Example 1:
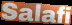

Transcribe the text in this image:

Salafi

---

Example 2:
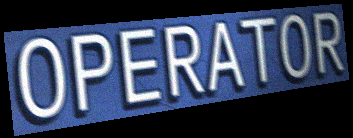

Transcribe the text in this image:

OPERATOR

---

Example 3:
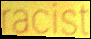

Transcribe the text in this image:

racist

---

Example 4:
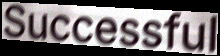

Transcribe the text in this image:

Successful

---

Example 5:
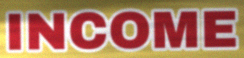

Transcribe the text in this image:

INCOME